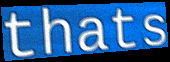
thats